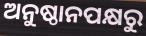
ଅନୁଷ୍ଠାନପକ୍ଷରୁ